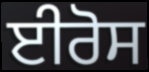
ਈਰੋਸ